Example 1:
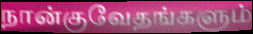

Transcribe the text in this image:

நான்குவேதங்களும்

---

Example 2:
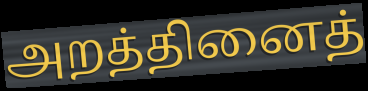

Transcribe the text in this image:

அறத்தினைத்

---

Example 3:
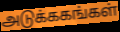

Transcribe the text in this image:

அடுக்ககங்கள்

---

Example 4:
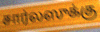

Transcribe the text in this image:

சார்லஸுக்கு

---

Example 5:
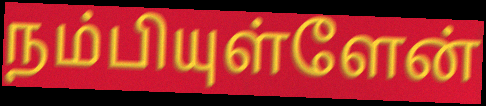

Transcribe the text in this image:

நம்பியுள்ளேன்